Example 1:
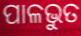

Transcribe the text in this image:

ପାଳଭୁତ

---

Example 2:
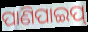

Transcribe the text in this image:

ପାଣିପାଇପ୍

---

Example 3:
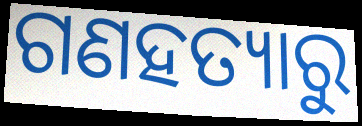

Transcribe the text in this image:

ଗଣହତ୍ୟାରୁ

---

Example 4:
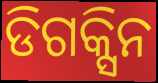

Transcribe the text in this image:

ଡିଗକ୍ସିନ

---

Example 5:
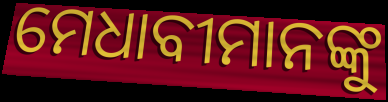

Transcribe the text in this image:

ମେଧାବୀମାନଙ୍କୁ